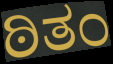
ಠಿತಂ